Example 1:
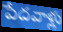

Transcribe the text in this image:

పేదవాళ్లు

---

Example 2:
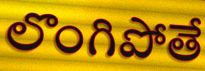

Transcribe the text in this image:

లొంగిపోతే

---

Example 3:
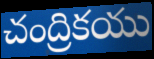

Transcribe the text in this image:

చంద్రికయు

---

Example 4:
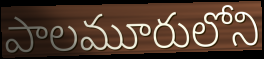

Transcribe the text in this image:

పాలమూరులోని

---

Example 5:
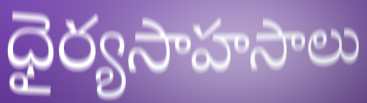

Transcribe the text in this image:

ధైర్యసాహసాలు